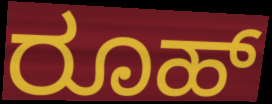
ರೂಹ್